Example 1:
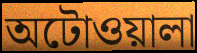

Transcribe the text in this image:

অটোওয়ালা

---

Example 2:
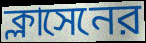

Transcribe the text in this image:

ক্লাসেনের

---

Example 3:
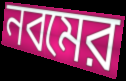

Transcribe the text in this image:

নবমের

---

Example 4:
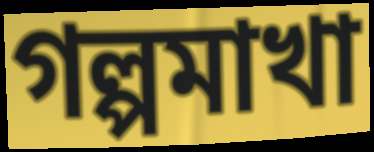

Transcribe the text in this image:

গল্পমাখা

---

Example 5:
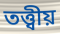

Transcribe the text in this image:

তত্ত্বীয়